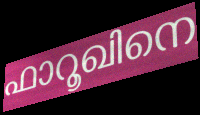
ഫാറൂഖിനെ